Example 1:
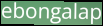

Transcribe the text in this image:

ebongalap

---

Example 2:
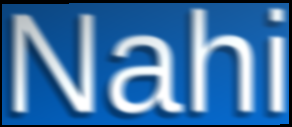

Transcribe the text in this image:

Nahi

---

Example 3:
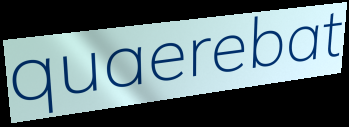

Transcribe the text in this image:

quaerebat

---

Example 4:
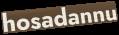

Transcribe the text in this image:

hosadannu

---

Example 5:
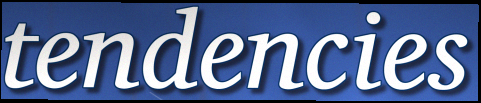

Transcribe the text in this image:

tendencies